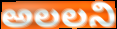
అలలని